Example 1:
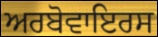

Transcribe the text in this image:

ਅਰਬੋਵਾਇਰਸ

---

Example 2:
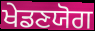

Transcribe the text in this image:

ਖੇਡਣਯੋਗ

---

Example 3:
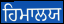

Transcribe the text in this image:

ਹਿਮਾਲਯ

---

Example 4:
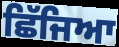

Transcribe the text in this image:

ਛਿੱਜਿਆ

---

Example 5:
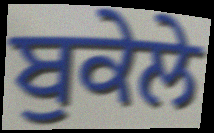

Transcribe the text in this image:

ਬੁਕੇਲੇ